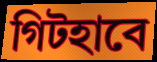
গিটহাবে